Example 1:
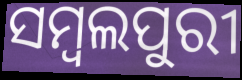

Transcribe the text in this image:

ସମ୍ବଲପୁରୀ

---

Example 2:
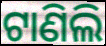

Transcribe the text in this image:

ଟାଣିଲି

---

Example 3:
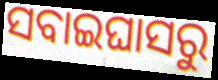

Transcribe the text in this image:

ସବାଇଘାସରୁ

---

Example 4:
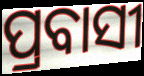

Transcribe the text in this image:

ପ୍ରବାସୀ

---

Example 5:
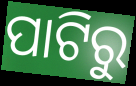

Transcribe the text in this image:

ପାଟିରୁ